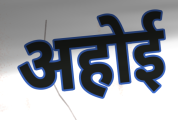
अहोई